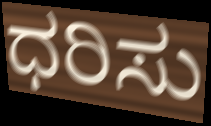
ಧರಿಸು